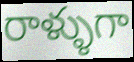
రాళ్ళుగా